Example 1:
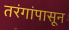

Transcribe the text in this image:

तरंगांपासून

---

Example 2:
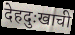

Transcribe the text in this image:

देहदुःखाची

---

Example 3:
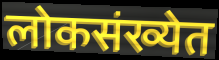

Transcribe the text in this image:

लोकसंख्येत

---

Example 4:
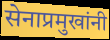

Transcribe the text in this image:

सेनाप्रमुखांनी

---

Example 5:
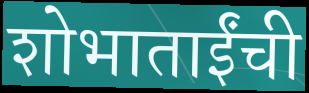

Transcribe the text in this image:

शोभाताईंची